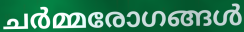
ചർമ്മരോഗങ്ങൾ